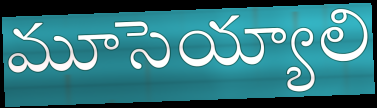
మూసెయ్యాలి